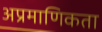
अप्रमाणिकता